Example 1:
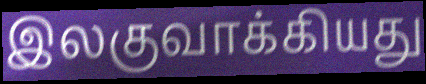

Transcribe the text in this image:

இலகுவாக்கியது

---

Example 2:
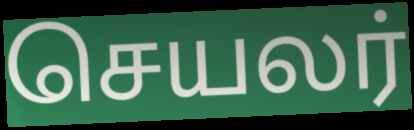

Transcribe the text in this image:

செயலர்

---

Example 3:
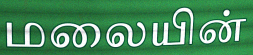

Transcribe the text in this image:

மலையின்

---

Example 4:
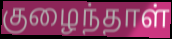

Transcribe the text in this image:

குழைந்தாள்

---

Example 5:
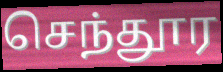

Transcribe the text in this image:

செந்தூர